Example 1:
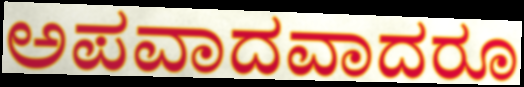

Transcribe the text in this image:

ಅಪವಾದವಾದರೂ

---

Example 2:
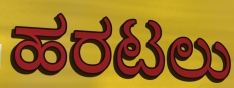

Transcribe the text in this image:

ಹರಟಲು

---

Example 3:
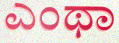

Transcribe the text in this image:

ಎಂಥಾ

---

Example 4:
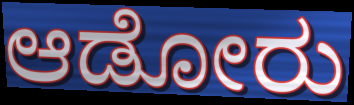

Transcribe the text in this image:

ಆಡೋರು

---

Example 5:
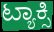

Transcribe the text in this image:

ಟ್ಯಾಕ್ಸಿ